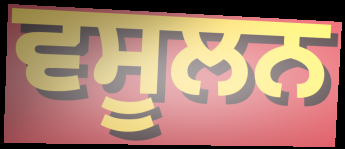
ਵਸੂਲਨ